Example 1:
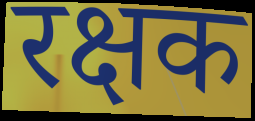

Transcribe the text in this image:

रक्षक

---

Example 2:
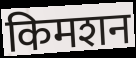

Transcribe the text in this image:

किमशन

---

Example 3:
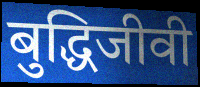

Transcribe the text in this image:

बुद्धिजीवी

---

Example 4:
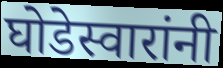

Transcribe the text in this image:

घोडेस्वारांनी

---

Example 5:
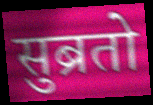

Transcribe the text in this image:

सुब्रतो